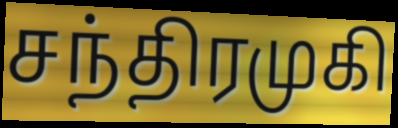
சந்திரமுகி